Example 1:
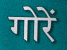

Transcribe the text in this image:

गोरें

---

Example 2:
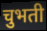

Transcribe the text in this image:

चुभती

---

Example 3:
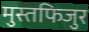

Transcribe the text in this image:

मुस्तफिजुर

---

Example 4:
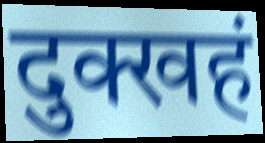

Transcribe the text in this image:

दुक्खहं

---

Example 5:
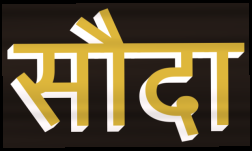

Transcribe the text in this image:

सौदा